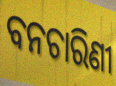
ବନଚାରିଣୀ